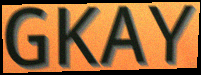
GKAY